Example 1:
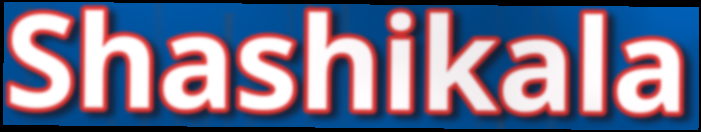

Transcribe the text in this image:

Shashikala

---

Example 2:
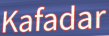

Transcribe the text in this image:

Kafadar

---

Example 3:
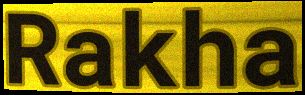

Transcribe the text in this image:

Rakha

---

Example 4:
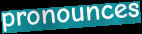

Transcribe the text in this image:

pronounces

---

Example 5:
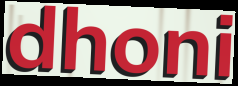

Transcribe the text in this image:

dhoni